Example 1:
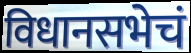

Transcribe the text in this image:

विधानसभेचं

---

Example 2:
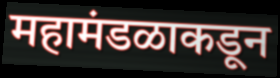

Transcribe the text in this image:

महामंडळाकडून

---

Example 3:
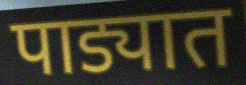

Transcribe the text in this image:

पाड्यात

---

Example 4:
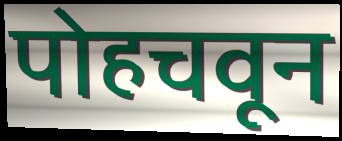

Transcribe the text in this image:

पोहचवून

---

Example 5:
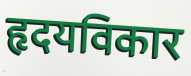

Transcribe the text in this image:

हृदयविकार